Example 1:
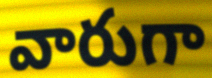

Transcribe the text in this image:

వారుగా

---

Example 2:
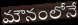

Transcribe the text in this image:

మౌనంలోనే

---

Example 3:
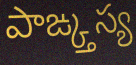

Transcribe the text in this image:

పాఙ్క్తస్య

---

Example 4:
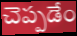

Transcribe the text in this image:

చెప్పడేం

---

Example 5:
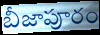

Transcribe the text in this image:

బీజాపూరం